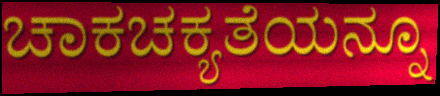
ಚಾಕಚಕ್ಯತೆಯನ್ನೂ